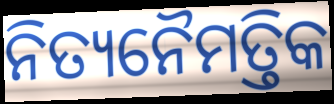
ନିତ୍ୟନୈମତ୍ତିକ